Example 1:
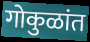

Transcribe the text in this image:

गोकुळांत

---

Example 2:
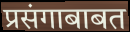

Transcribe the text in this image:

प्रसंगाबाबत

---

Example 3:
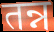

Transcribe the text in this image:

तन्न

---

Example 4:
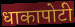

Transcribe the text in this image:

धाकापोटी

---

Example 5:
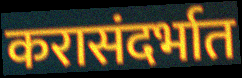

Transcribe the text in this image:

करासंदर्भात